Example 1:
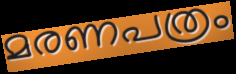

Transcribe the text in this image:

മരണപത്രം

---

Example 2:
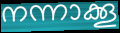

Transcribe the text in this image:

നന്നാക്കൂ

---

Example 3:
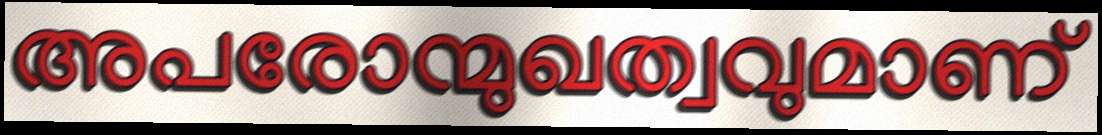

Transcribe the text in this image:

അപരോന്മുഖത്വവുമാണ്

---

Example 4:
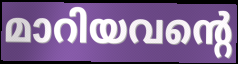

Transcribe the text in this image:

മാറിയവന്റെ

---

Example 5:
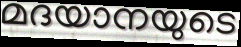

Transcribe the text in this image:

മദയാനയുടെ